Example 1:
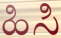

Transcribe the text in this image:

ಹಿಸಿ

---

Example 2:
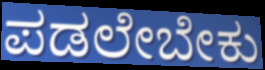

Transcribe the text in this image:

ಪಡಲೇಬೇಕು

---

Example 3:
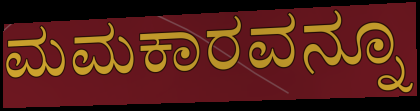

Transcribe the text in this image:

ಮಮಕಾರವನ್ನೂ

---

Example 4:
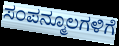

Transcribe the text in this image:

ಸಂಪನ್ಮೂಲಗಳಿಗೆ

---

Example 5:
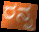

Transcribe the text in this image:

ರನ್ನ